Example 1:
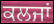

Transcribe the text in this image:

ਕਲਜਾਂ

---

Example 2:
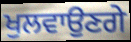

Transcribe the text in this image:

ਖੁਲਵਾਉਣਗੇ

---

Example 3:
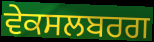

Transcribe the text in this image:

ਵੇਕਸਲਬਰਗ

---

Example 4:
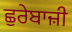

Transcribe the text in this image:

ਛੁਰੇਬਾਜ਼ੀ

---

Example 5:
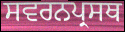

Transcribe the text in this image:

ਸਵਰਨਪ੍ਰਸਥ